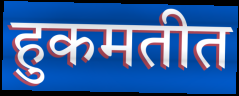
हुकमतीत